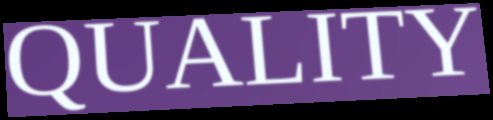
QUALITY